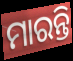
ମାରନ୍ତି